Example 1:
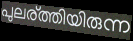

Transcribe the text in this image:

പുലര്ത്തിയിരുന്ന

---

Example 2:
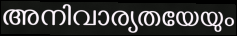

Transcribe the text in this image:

അനിവാര്യതയേയും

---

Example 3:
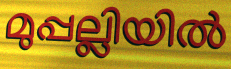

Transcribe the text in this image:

മുപ്പല്ലിയിൽ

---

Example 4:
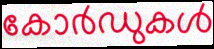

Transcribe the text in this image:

കോർഡുകൾ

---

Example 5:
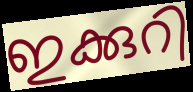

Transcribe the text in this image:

ഇക്കുറി